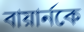
বায়ার্নকে